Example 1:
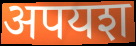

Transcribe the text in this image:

अपयश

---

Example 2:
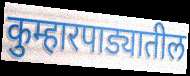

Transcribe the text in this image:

कुम्हारपाड्यातील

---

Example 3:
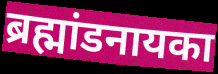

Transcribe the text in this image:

ब्रह्मांडनायका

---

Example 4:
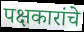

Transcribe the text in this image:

पक्षकारांचे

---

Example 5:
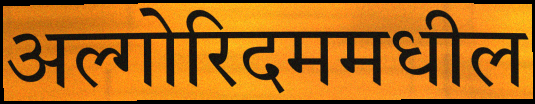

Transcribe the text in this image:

अल्गोरिदममधील